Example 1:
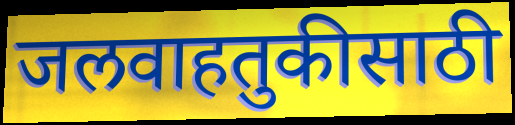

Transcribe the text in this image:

जलवाहतुकीसाठी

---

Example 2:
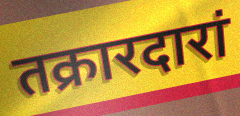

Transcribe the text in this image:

तक्रारदारां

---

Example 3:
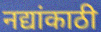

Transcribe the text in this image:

नद्यांकाठी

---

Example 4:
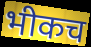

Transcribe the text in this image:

भीकच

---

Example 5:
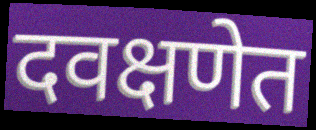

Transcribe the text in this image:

दवक्षणेत